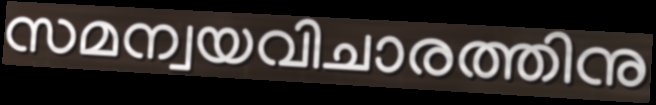
സമന്വയവിചാരത്തിനു